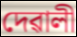
দেৱালী